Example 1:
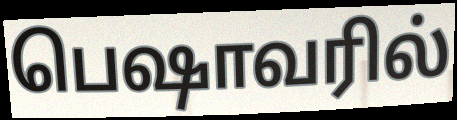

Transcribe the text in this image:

பெஷாவரில்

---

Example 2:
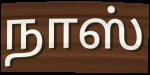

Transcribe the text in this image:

நாஸ்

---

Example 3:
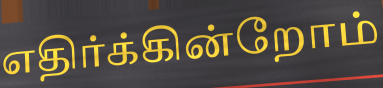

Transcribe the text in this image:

எதிர்க்கின்றோம்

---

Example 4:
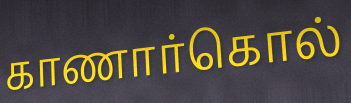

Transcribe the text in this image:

காணார்கொல்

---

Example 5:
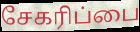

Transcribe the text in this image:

சேகரிப்பை